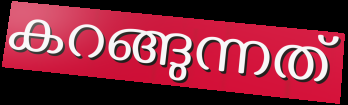
കറങ്ങുന്നത്